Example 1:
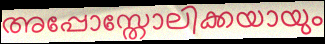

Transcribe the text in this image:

അപ്പോസ്തോലിക്കയായും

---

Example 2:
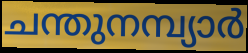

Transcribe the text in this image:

ചന്തുനമ്പ്യാർ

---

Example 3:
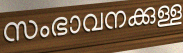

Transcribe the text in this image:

സംഭാവനക്കുള്ള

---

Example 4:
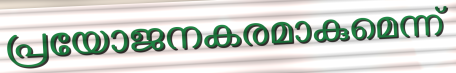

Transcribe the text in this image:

പ്രയോജനകരമാകുമെന്ന്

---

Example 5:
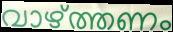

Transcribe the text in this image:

വാഴ്ത്തണം